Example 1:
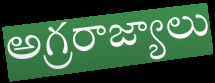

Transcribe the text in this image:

అగ్రరాజ్యాలు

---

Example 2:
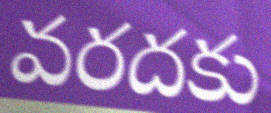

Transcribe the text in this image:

వరదకు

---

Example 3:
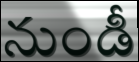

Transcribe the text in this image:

నుండీ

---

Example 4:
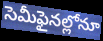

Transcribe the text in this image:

సెమీఫైనల్లోనూ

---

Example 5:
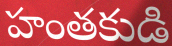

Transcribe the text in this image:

హంతకుడి